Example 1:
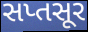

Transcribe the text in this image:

સપ્તસૂર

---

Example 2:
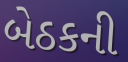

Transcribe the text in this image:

બેઠકની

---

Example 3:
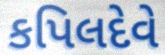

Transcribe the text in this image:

કપિલદેવે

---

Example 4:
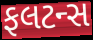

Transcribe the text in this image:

ફલટન્સ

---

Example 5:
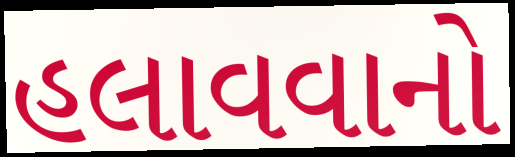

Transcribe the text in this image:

હલાવવાનો